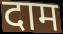
दाम